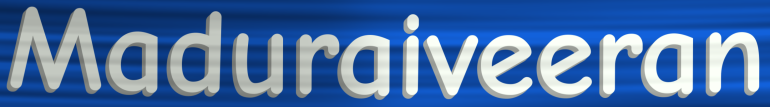
Maduraiveeran